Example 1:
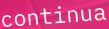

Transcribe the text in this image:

continua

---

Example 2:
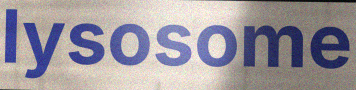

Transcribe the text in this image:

lysosome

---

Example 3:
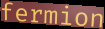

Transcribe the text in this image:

fermion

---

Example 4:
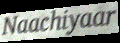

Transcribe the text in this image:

Naachiyaar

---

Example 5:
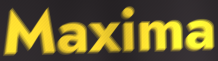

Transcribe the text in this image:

Maxima